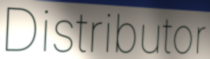
Distributor